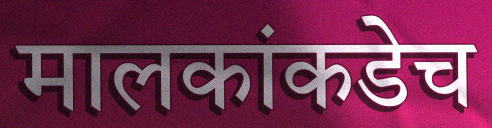
मालकांकडेच